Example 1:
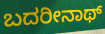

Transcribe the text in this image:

ಬದರೀನಾಥ್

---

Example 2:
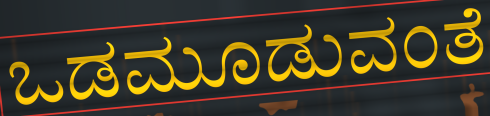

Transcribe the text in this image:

ಒಡಮೂಡುವಂತೆ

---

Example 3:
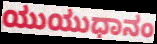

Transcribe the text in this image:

ಯುಯುಧಾನಂ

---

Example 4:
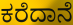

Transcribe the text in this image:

ಕರೆದಾನೆ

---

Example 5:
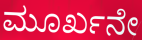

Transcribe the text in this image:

ಮೂರ್ಖನೇ